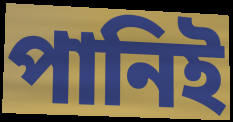
পানিই